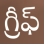
గ్రీఫ్